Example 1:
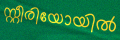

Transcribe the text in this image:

സ്റ്റീരിയോയിൽ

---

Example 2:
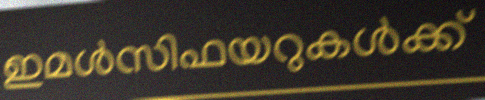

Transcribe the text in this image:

ഇമൾസിഫയറുകൾക്ക്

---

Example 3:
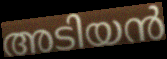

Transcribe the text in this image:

അടിയൻ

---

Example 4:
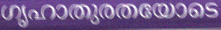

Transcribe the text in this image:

ഗൃഹാതുരതയോടെ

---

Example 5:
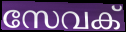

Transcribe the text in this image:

സേവക്